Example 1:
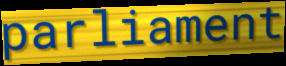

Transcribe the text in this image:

parliament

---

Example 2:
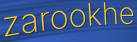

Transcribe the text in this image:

zarookhe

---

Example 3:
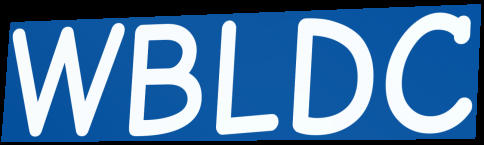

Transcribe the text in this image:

WBLDC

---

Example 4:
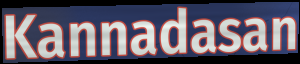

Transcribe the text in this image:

Kannadasan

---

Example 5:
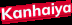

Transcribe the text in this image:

Kanhaiya